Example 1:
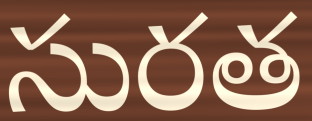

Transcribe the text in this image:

సురత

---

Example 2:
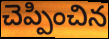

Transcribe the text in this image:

చెప్పించిన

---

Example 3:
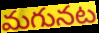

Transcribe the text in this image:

మగునట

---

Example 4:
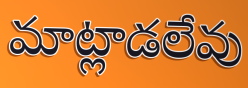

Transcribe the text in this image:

మాట్లాడలేవు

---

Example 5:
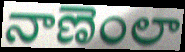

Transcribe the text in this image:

నాణెంలా